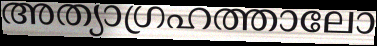
അത്യാഗ്രഹത്താലോ